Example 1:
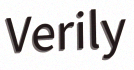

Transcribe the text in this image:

Verily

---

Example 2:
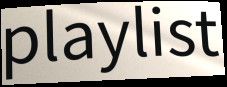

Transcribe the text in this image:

playlist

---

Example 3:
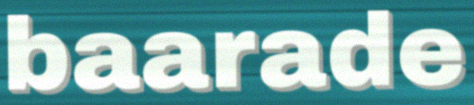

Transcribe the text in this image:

baarade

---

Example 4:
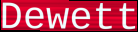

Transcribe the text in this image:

Dewett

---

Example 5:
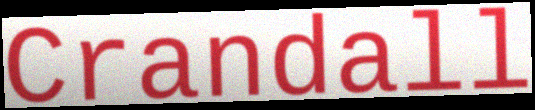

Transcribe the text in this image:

Crandall